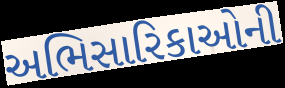
અભિસારિકાઓની